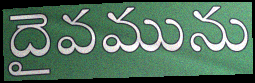
దైవమును